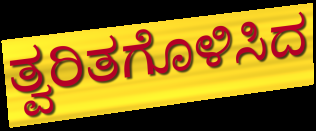
ತ್ವರಿತಗೊಳಿಸಿದ